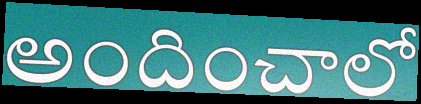
అందించాలో